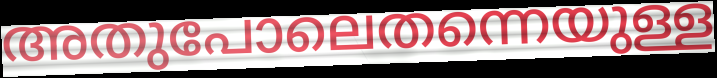
അതുപോലെതന്നെയുള്ള